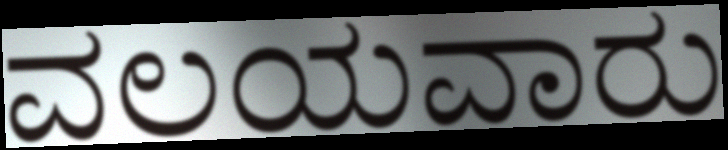
ವಲಯವಾರು